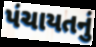
પંચાયતનું